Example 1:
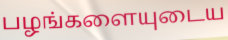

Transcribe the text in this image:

பழங்களையுடைய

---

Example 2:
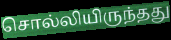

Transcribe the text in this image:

சொல்லியிருந்தது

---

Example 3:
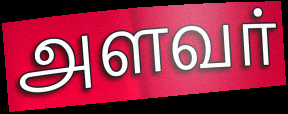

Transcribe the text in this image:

அளவர்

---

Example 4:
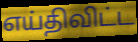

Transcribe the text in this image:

எய்திவிட்ட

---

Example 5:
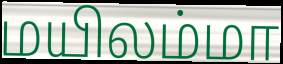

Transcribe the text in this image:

மயிலம்மா